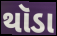
થૉડા